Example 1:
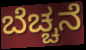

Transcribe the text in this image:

ಬೆಚ್ಚನೆ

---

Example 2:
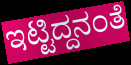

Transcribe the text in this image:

ಇಟ್ಟಿದ್ದನಂತೆ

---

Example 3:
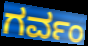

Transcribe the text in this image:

ಗರ್ವಂ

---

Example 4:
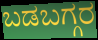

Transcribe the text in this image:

ಬಡಬಗ್ಗರ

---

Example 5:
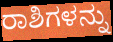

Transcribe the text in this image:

ರಾಶಿಗಳನ್ನು